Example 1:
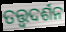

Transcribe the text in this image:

ତତ୍ତ୍ଵଦର୍ଶନ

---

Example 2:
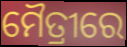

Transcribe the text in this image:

ମୈତ୍ରୀରେ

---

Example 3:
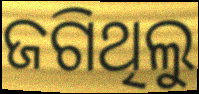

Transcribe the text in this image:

ଜଗିଥିଲୁ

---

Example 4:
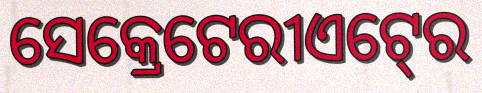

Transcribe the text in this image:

ସେକ୍ରେଟେରୀଏଟ୍‍ରେ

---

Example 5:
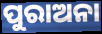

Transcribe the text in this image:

ପୁରାଅନା